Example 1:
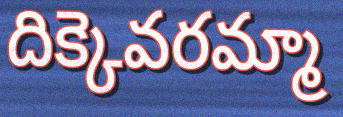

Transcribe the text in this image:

దిక్కెవరమ్మా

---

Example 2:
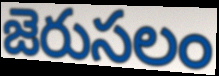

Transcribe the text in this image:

జెరుసలం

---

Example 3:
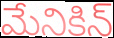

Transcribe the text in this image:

మేనికిన్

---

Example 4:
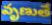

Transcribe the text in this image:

వృణుతే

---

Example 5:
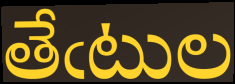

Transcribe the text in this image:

తేఁటుల